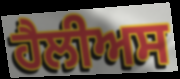
ਹੈਲੀਅਸ